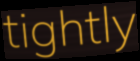
tightly